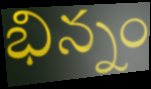
భిన్నం